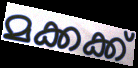
മക്കക്ക്